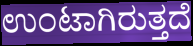
ಉಂಟಾಗಿರುತ್ತದೆ